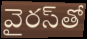
వైరస్‌తో